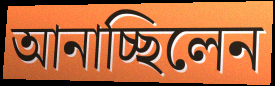
আনাচ্ছিলেন